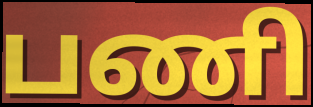
பணி